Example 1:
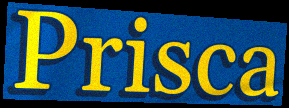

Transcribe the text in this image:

Prisca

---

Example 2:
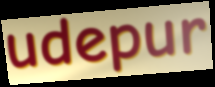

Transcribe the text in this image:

udepur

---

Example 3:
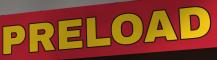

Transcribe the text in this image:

PRELOAD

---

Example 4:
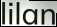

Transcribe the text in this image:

lilan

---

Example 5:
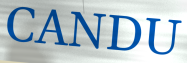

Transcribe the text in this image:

CANDU